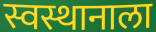
स्वस्थानाला